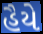
હૈયે